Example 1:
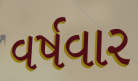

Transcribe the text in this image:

વર્ષવાર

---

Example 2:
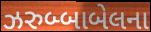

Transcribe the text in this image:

ઝરુબ્બાબેલના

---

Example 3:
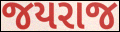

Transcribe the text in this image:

જયરાજ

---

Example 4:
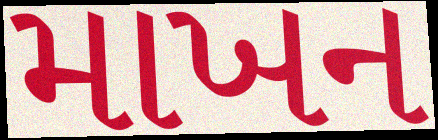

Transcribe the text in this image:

માખન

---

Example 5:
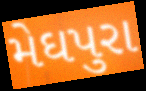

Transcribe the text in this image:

મેઘપુરા